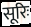
सूरिः